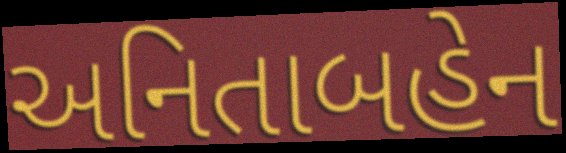
અનિતાબહેન